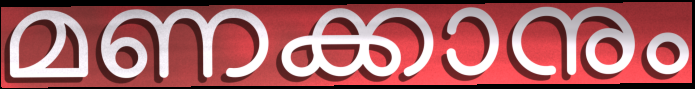
മണക്കാനും